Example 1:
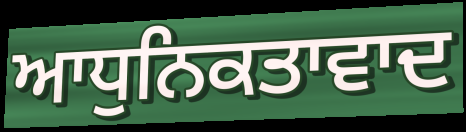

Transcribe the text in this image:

ਆਧੁਨਿਕਤਾਵਾਦ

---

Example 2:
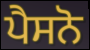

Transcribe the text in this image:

ਪੈਸਨੋ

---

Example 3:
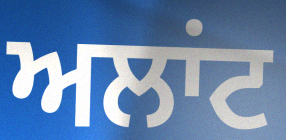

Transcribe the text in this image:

ਅਲਾਂਟ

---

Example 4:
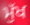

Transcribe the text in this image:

ਮੁੱਖ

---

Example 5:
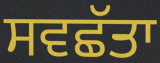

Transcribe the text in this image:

ਸਵਛੱਤਾ